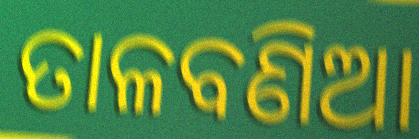
ତାଳବଣିଆ